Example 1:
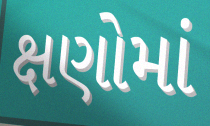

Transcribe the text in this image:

ક્ષણોમાં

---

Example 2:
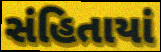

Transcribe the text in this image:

સંહિતાયાં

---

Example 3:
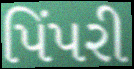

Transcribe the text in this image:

પિંપરી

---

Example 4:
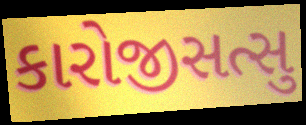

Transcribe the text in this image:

કારોજીસત્સુ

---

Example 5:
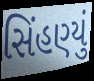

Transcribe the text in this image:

સિંહણ્યું